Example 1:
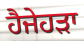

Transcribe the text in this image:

ਹੈਜੇਹੜਾ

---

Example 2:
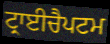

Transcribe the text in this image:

ਟ੍ਰਾਈਚੈਪਟਮ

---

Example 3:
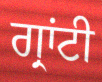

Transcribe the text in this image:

ਗ੍ਰਾਂਟੀ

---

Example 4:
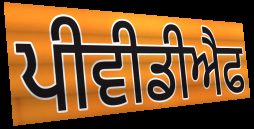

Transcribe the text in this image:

ਪੀਵੀਡੀਐਫ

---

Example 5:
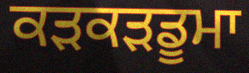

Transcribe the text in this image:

ਕੜਕੜਡੂਮਾ